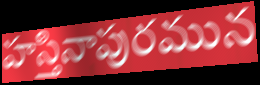
హస్తినాపురమున